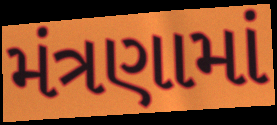
મંત્રણામાં